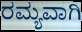
ರಮ್ಯವಾಗಿ